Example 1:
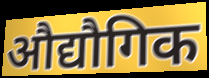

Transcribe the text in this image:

औद्यौगिक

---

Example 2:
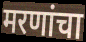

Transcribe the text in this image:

मरणांचा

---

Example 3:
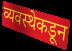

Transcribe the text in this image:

व्यवस्थेकडून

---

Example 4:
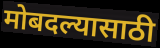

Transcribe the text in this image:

मोबदल्यासाठी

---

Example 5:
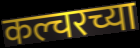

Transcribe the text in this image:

कल्चरच्या